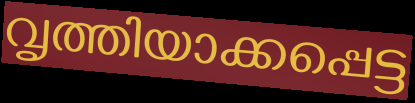
വൃത്തിയാക്കപ്പെട്ട